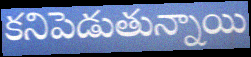
కనిపెడుతున్నాయి